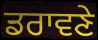
ਡਰਾਵਣੇ